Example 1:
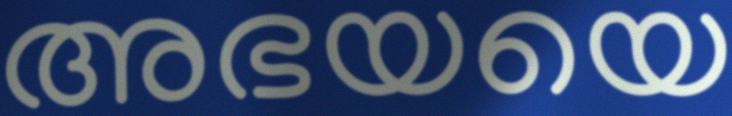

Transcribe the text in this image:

അഭയയെ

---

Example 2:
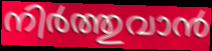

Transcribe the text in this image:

നിർത്തുവാൻ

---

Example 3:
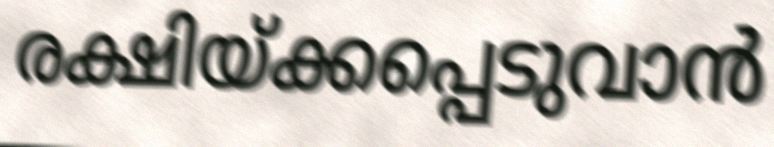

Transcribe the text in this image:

രക്ഷിയ്ക്കപ്പെടുവാൻ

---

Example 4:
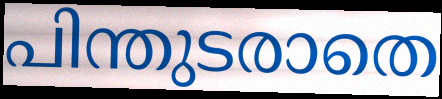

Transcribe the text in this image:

പിന്തുടരാതെ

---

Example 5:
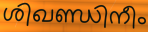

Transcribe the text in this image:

ശിഖണ്ഡിനീം